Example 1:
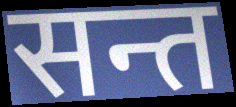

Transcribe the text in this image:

सन्त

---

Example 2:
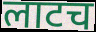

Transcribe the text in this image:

लाटच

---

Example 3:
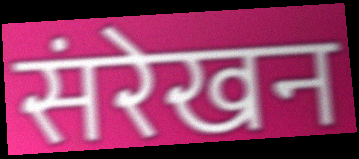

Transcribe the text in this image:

संरेखन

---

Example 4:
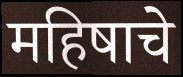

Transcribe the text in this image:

महिषाचे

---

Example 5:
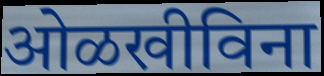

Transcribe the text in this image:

ओळखीविना